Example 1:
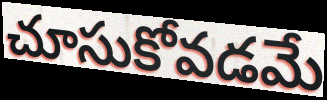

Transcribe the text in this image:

చూసుకోవడమే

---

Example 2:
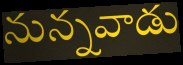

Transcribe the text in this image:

నున్నవాడు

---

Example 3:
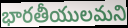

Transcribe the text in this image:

భారతీయులమని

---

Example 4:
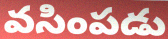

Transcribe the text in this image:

వసింపడు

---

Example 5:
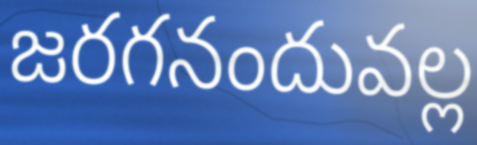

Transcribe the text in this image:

జరగనందువల్ల